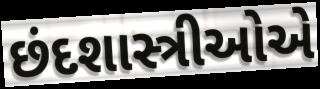
છંદશાસ્ત્રીઓએ